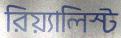
রিয়্যালিস্ট